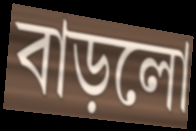
বাড়লো